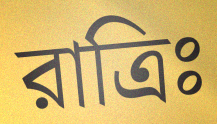
রাত্রিঃ